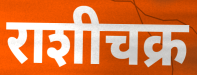
राशीचक्र